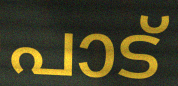
പാട്